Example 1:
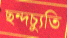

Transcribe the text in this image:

ছন্দচ্যুতি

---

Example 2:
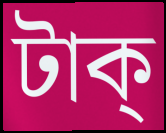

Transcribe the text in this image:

টাক্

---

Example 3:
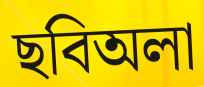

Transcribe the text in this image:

ছবিঅলা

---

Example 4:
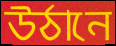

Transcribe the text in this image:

উঠানে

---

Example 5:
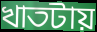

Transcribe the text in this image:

খাতটায়